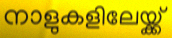
നാളുകളിലേയ്ക്ക്